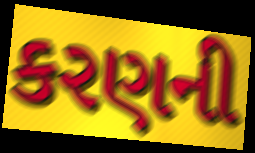
કરણની